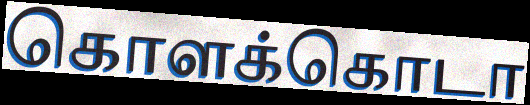
கொளக்கொடா